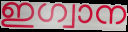
ഇഗ്വാന